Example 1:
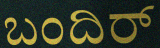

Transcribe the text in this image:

ಬಂದಿರ್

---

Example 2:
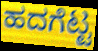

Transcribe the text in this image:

ಹದಗೆಟ್ಟ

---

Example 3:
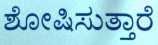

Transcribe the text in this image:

ಶೋಷಿಸುತ್ತಾರೆ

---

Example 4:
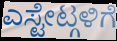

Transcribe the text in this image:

ಎಸ್ಟೇಟ್ಗಳಿಗೆ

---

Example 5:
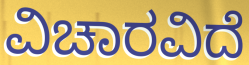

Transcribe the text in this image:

ವಿಚಾರವಿದೆ